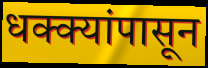
धक्क्यांपासून